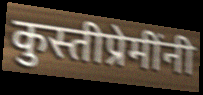
कुस्तीप्रेमींनी